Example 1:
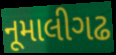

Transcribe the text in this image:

નૂમાલીગઢ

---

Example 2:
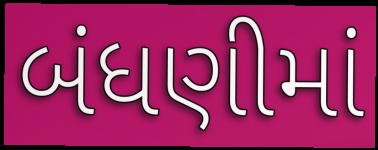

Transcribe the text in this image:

બંધણીમાં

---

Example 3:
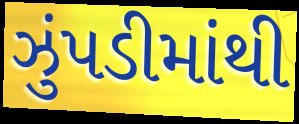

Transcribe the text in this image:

ઝુંપડીમાંથી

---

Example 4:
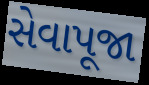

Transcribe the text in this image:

સેવાપૂજા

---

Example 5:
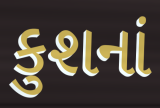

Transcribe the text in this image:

કુશનાં